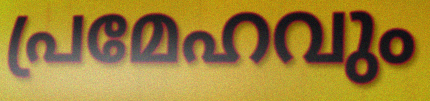
പ്രമേഹവും